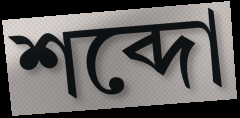
শব্দো